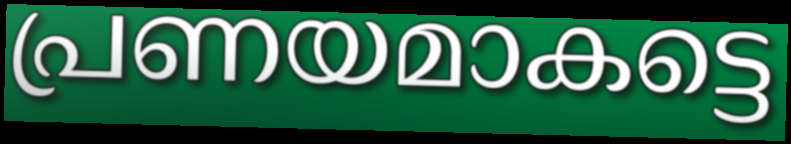
പ്രണയമാകട്ടെ